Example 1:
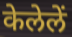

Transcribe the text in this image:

केलेलें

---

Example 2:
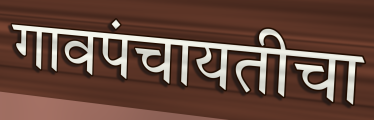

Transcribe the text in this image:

गावपंचायतीचा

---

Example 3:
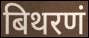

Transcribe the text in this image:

बिथरणं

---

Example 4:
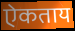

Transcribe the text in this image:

ऐकताय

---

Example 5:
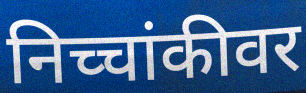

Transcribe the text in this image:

निच्चांकीवर